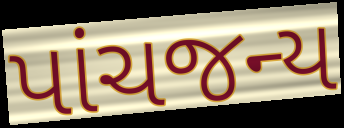
પાંચજન્ય